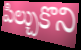
పిల్చుకొని